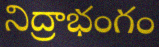
నిద్రాభంగం